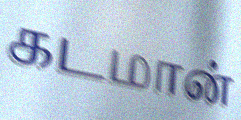
கடமான்